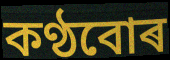
কণ্ঠবোৰ